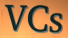
VCs